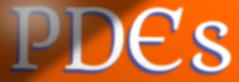
PDEs